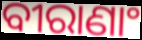
ବୀରାଣାଂ